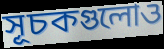
সূচকগুলোও